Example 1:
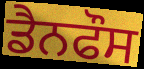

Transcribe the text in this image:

ਡੈਨਫੌਸ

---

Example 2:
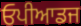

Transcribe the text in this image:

ਓਪੀਆਡਜ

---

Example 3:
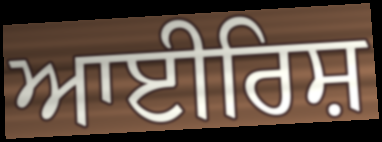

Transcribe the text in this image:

ਆਈਰਿਸ਼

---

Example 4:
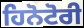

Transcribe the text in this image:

ਹਿਨੋਟੋਰੀ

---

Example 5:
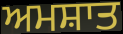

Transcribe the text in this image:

ਅਮਸ਼ਾਤ